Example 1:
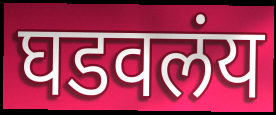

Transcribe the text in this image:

घडवलंय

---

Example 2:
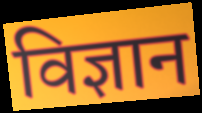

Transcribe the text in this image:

विज्ञान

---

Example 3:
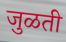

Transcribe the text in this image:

जुळती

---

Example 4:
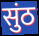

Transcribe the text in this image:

सुंठ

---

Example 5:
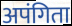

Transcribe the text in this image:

अपंगिता